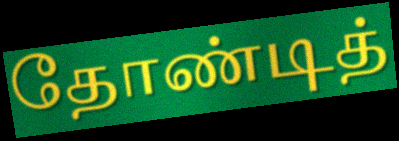
தோண்டித்